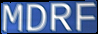
MDRF